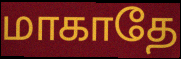
மாகாதே